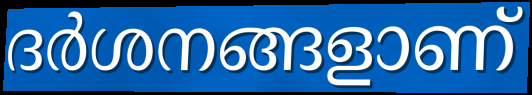
ദർശനങ്ങളാണ്